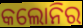
କଲୋନିର